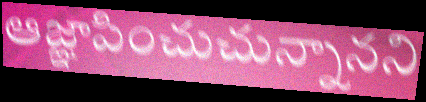
ఆజ్ఞాపించుచున్నానని